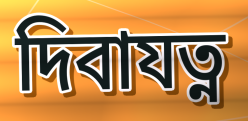
দিবাযত্ন